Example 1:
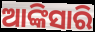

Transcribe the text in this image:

ଆଙ୍କିସାରି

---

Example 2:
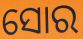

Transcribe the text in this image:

ସୋର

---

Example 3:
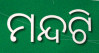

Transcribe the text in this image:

ମନ୍ଦଟି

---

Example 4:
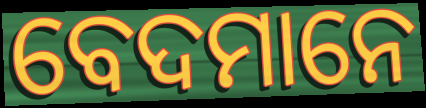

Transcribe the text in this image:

ବେଦମାନେ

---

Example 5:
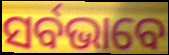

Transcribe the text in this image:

ସର୍ବଭାବେ